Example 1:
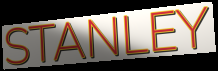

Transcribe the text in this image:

STANLEY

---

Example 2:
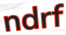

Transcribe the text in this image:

ndrf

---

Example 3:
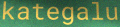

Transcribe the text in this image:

kategalu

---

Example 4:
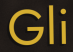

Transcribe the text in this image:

Gli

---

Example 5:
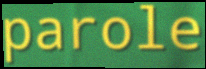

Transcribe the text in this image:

parole